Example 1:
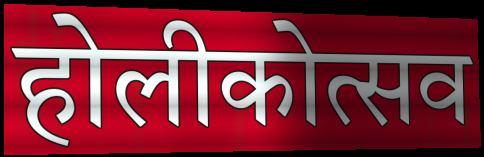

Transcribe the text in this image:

होलीकोत्सव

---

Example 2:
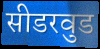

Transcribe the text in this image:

सीडरवुड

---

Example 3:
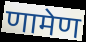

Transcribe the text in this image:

णामेण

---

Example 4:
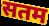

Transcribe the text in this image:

सतम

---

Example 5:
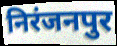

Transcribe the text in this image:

निरंजनपुर